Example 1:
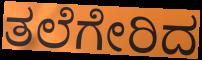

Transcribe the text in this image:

ತಲೆಗೇರಿದ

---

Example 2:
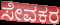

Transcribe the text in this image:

ಸೇವಕರ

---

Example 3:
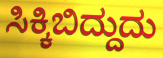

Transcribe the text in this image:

ಸಿಕ್ಕಿಬಿದ್ದುದು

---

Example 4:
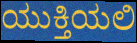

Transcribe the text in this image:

ಯುಕ್ತಿಯಲಿ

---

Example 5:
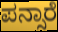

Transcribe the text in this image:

ಪನ್ಸಾರೆ